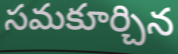
సమకూర్చిన